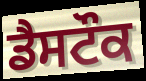
ਡੈਸਟੌਕ